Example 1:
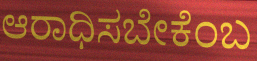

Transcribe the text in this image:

ಆರಾಧಿಸಬೇಕೆಂಬ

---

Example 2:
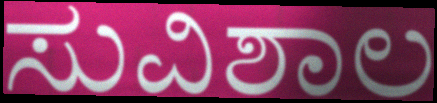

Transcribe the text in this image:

ಸುವಿಶಾಲ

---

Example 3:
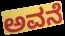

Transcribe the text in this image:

ಅವನೆ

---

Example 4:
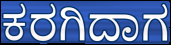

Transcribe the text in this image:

ಕರಗಿದಾಗ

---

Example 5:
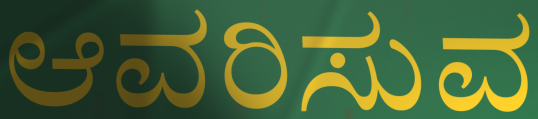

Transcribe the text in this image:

ಆವರಿಸುವ